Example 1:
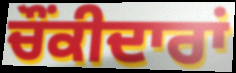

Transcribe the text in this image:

ਚੌਂਕੀਦਾਰਾਂ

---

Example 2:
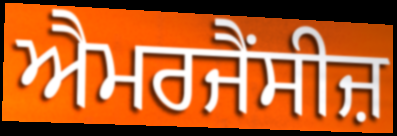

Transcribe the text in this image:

ਐਮਰਜੈਂਸੀਜ਼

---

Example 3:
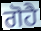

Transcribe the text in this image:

ਗੋਹੈ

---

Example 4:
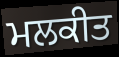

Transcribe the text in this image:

ਮਲਕੀਤ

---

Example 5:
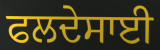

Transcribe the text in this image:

ਫਲਦੇਸਾਈ